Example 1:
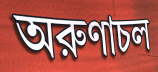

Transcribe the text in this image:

অরুণাচল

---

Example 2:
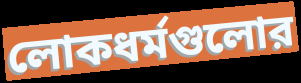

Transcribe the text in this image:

লোকধর্মগুলোর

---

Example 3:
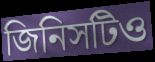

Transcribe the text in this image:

জিনিসটিও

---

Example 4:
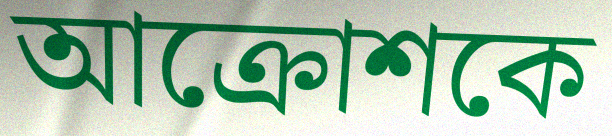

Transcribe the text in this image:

আক্রোশকে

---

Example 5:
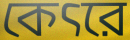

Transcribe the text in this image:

কেৎরে